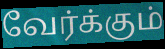
வேர்க்கும்